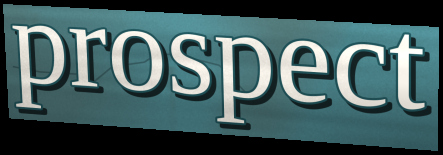
prospect